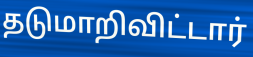
தடுமாறிவிட்டார்